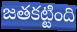
జతకట్టింది